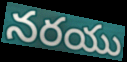
నరయు